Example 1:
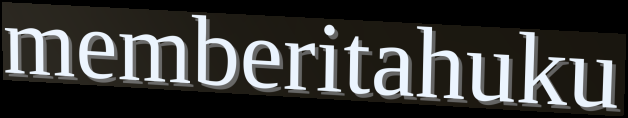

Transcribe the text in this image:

memberitahuku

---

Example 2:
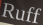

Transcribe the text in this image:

Ruff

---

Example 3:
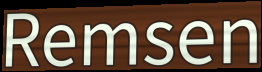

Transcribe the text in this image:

Remsen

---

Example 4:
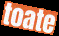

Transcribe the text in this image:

toate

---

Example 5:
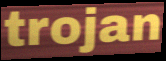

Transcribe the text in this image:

trojan